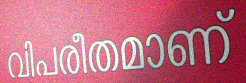
വിപരീതമാണ്